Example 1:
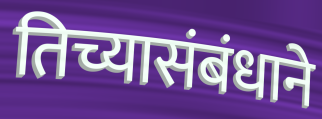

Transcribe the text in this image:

तिच्यासंबंधाने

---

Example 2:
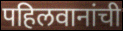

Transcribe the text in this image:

पहिलवानांची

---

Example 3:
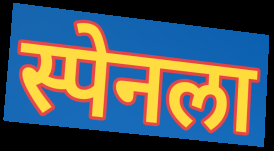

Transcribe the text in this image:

स्पेनला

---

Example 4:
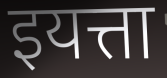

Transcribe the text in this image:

इयत्ता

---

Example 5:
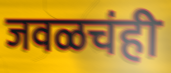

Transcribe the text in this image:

जवळचंही